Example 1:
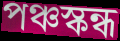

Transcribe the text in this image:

পঞ্চস্কন্ধ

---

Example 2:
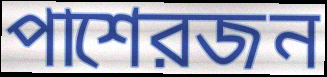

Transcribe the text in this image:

পাশেরজন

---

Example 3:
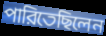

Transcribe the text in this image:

পারিতেছিলেন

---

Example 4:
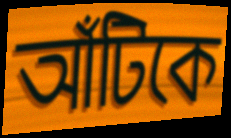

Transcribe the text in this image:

আঁটিকে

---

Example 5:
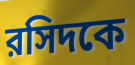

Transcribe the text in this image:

রসিদকে